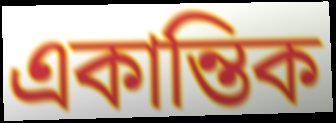
একান্তিক